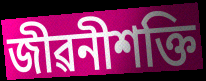
জীৱনীশক্তি